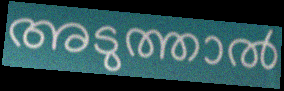
അടുത്താൽ